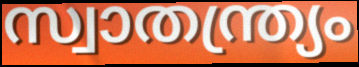
സ്വാതന്ത്ര്യം